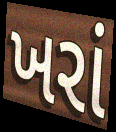
ખરાં